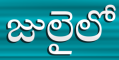
జులైలో